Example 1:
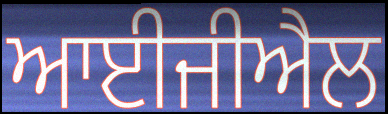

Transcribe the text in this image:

ਆਈਜੀਐਲ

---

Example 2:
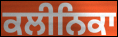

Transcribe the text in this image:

ਕਲੀਨਿਕਾ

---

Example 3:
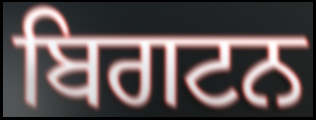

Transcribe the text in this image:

ਬਿਗਟਨ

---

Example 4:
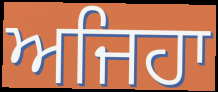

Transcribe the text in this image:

ਅਜਿਹਾ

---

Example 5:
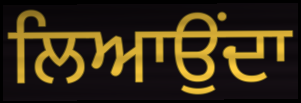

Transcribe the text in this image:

ਲਿਆਉਂਦਾ